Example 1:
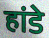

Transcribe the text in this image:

हांडे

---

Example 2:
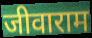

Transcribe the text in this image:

जीवाराम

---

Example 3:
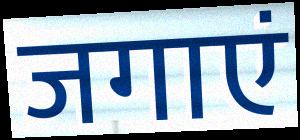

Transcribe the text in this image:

जगाएं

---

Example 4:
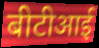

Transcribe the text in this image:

बीटीआई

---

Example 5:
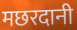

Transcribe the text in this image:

मछरदानी